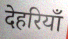
देहरियाँ